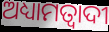
ଅଧ୍ୟାମତ୍ବାଦୀ